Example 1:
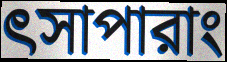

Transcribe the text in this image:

ৎসাপারাং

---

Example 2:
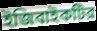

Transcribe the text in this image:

ইজিবাইকটির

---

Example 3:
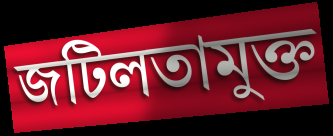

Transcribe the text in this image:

জটিলতামুক্ত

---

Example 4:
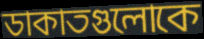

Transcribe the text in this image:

ডাকাতগুলোকে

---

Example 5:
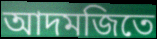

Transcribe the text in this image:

আদমজিতে